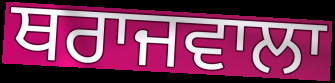
ਥਰਾਜਵਾਲਾ